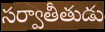
సర్వాతీతుడు